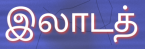
இலாடத்